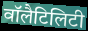
वॉलैटिलिटी